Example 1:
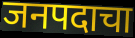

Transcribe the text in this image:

जनपदाचा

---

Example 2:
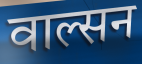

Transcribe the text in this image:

वाल्सन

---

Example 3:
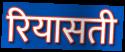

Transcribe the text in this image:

रियासती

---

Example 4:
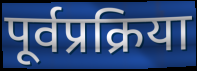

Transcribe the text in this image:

पूर्वप्रक्रिया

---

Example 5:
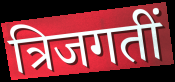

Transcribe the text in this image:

त्रिजगतीं